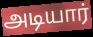
அடியார்